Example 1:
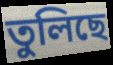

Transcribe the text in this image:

তুলিছে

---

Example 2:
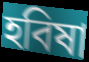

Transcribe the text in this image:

হবিষা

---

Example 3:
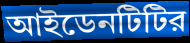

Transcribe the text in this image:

আইডেনটিটির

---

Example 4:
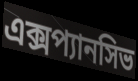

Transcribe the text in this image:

এক্সপ্যানসিভ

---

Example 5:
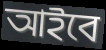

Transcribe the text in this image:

আইবে